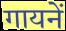
गायनें